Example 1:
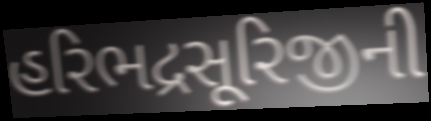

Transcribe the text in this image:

હરિભદ્રસૂરિજીની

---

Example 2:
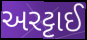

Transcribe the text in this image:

અરટ્ટાઈ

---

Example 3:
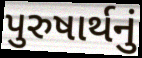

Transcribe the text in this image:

પુરુષાર્થનું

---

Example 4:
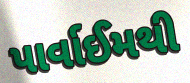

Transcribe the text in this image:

પાર્વાઈમથી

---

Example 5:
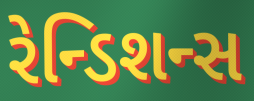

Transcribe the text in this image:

રેન્ડિશન્સ